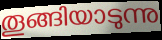
തൂങ്ങിയാടുന്നു